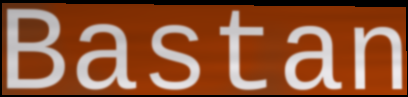
Bastan